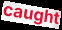
caught